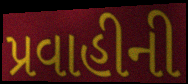
પ્રવાહીની